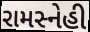
રામસ્નેહી